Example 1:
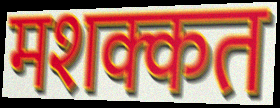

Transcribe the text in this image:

मशक्कत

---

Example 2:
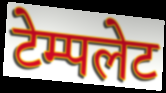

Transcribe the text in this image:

टेम्पलेट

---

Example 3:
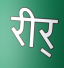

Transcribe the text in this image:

रीर्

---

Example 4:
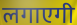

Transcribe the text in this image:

लगाएगी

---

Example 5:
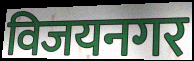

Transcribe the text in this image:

विजयनगर